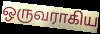
ஒருவராகிய